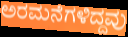
ಅರಮನೆಗಳಿದ್ದವು